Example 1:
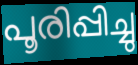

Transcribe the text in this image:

പൂരിപ്പിച്ചു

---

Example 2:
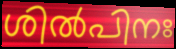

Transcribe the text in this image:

ശിൽപിനഃ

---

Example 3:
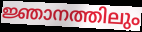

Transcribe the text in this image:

ജ്ഞാനത്തിലും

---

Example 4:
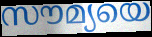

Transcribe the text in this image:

സൗമ്യയെ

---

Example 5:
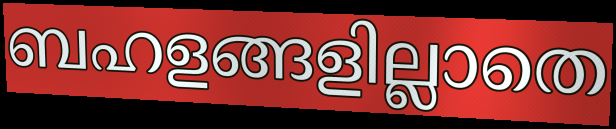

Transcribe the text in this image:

ബഹളങ്ങളില്ലാതെ